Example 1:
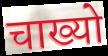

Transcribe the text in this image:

चाख्यो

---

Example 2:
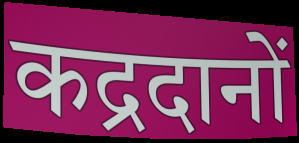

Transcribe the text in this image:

कद्रदानों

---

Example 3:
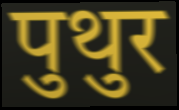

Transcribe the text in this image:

पुथुर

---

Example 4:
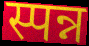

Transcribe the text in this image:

स्पन्न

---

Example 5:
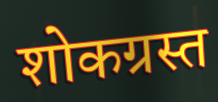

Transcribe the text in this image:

शोकग्रस्त